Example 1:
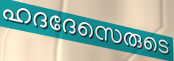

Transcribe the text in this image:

ഹദദേസെരുടെ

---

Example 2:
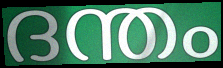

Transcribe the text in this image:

ദന്തം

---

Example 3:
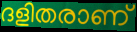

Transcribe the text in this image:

ദളിതരാണ്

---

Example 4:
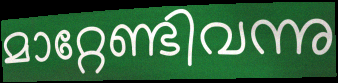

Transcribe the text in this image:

മാറ്റേണ്ടിവന്നു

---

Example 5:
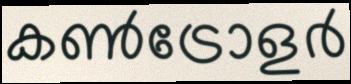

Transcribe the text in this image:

കൺട്രോളർ